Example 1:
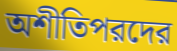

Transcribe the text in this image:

অশীতিপরদের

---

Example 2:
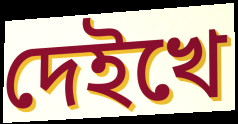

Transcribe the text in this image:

দেইখে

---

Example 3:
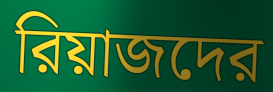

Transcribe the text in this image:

রিয়াজদের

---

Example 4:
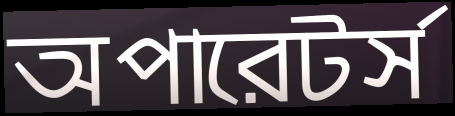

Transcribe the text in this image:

অপারেটর্স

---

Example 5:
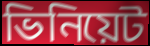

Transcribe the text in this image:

ভিনিয়েট